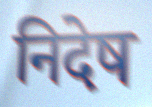
निदेष